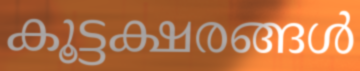
കൂട്ടക്ഷരങ്ങൾ